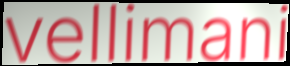
vellimani